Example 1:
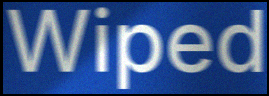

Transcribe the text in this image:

Wiped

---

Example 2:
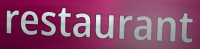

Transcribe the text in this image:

restaurant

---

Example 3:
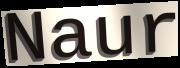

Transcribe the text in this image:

Naur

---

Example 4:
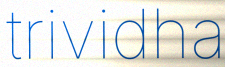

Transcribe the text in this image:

trividha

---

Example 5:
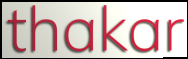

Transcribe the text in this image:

thakar